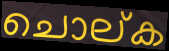
ചൊല്ക